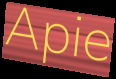
Apie